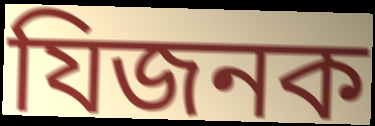
যিজনক